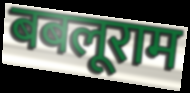
बबलूराम